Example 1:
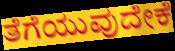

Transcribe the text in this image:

ತೆಗೆಯುವುದೇಕೆ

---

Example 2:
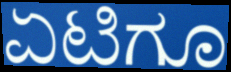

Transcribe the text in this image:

ಏಟಿಗೂ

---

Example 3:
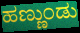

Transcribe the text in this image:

ಹಣ್ಣುಂಡು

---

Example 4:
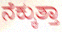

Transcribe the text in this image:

ನೆಕ್ಕುತ್ತಾ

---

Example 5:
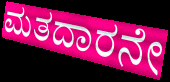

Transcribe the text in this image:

ಮತದಾರನೇ